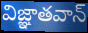
విజ్ఞాతవాన్